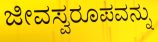
ಜೀವಸ್ವರೂಪವನ್ನು